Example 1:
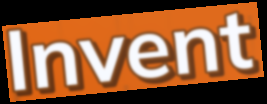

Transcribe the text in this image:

Invent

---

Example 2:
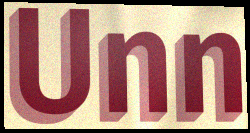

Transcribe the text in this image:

Unn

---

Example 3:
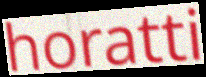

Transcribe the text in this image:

horatti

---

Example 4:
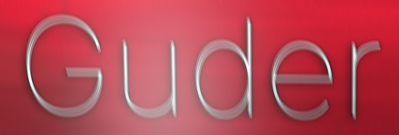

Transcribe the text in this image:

Guder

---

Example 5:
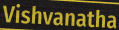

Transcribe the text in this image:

Vishvanatha